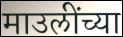
माउलींच्या